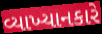
વ્યાખ્યાનકારે